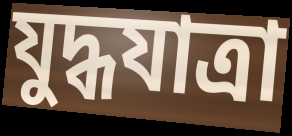
যুদ্ধযাত্রা